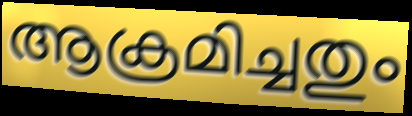
ആക്രമിച്ചതും